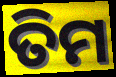
ତିମ